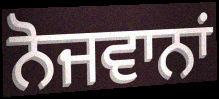
ਨੋਜਵਾਨਾਂ